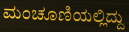
ಮಂಚೂಣಿಯಲ್ಲಿದ್ದು